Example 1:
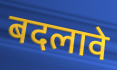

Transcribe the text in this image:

बदलावे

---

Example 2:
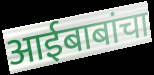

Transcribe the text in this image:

आईबाबांचा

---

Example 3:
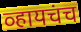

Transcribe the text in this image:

व्हायचंच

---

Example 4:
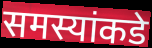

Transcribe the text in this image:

समस्यांकडे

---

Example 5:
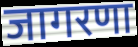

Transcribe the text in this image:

जागरणा